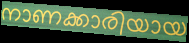
നാണക്കാരിയായ